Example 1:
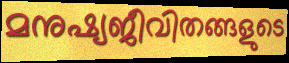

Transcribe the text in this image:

മനുഷ്യജീവിതങ്ങളുടെ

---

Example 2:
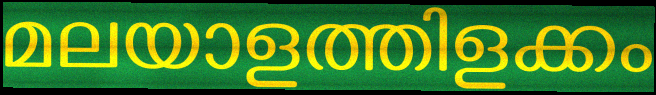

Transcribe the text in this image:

മലയാളത്തിളക്കം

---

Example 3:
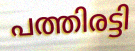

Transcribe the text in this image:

പത്തിരട്ടി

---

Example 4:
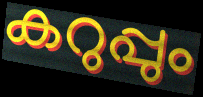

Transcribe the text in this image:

കറുപ്പും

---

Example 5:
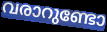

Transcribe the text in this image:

വരാറുണ്ടോ